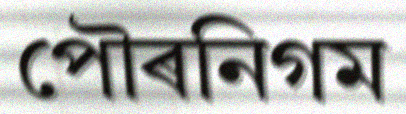
পৌৰনিগম